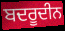
ਬਦਰੂਦੀਨ